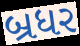
બ્રધર